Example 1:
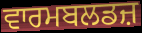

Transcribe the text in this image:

ਵਾਰਮਬਲਡਜ਼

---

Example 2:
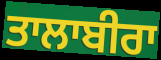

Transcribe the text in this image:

ਤਾਲਾਬੀਰਾ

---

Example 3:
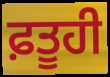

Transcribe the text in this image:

ਫ਼ਤੂਹੀ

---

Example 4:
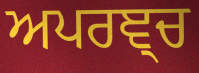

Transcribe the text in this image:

ਅਪਰਞ੍ਚ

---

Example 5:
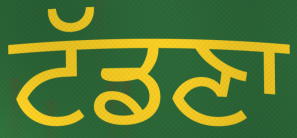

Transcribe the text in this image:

ਟੱਡਣਾ